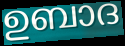
ഉബാദ